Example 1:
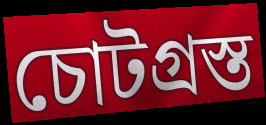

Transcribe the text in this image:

চোটগ্রস্ত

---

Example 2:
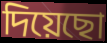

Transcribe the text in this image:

দিয়েছো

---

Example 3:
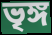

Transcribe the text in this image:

ভৃঙ্গ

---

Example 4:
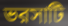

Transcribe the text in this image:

ভরসাটি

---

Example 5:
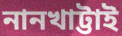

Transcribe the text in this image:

নানখাট্টাই